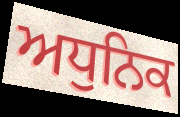
ਅਧੁਨਿਕ